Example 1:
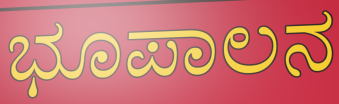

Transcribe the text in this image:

ಭೂಪಾಲನ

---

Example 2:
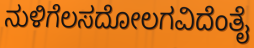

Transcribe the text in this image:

ನುಳಿಗೆಲಸದೋಲಗವಿದೆಂತೈ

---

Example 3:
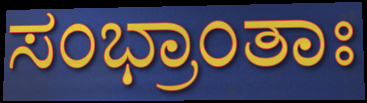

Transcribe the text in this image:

ಸಂಭ್ರಾಂತಾಃ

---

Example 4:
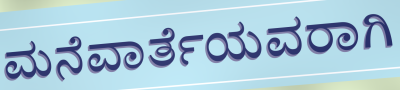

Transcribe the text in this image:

ಮನೆವಾರ್ತೆಯವರಾಗಿ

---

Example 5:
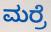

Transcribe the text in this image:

ಮರ್ರೆ